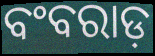
ବଂବରାଡ଼